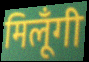
मिलूँगी